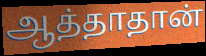
ஆத்தாதான்